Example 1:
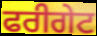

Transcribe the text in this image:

ਫਰੀਗੇਟ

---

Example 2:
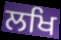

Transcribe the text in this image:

ਲਖਿ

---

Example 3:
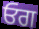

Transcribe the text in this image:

ਓਗ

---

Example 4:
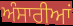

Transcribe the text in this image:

ਅੰਸਾਰੀਆਂ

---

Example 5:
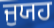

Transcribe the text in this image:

ਜੁਯਹ